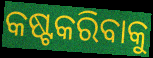
କଷ୍ଟକରିବାକୁ